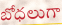
బోధలుగా